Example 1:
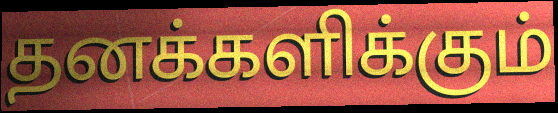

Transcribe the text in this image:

தனக்களிக்கும்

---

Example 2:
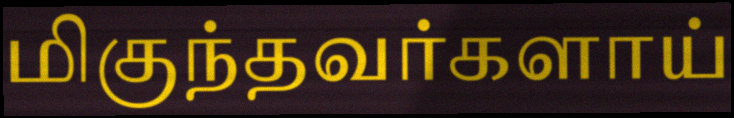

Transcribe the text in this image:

மிகுந்தவர்களாய்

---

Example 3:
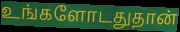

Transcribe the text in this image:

உங்களோடதுதான்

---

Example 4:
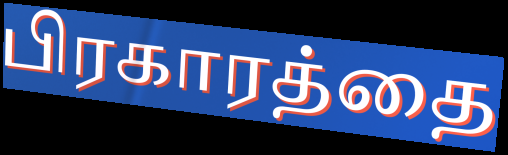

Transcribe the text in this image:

பிரகாரத்தை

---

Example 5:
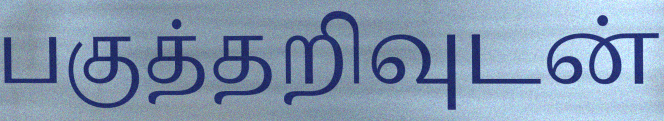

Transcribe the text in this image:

பகுத்தறிவுடன்